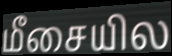
மீசையில